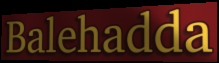
Balehadda